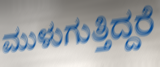
ಮುಳುಗುತ್ತಿದ್ದರೆ